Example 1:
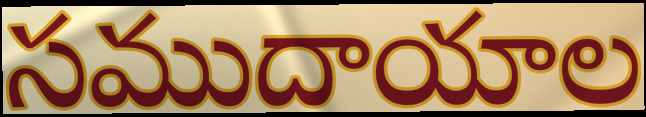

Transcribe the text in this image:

సముదాయాల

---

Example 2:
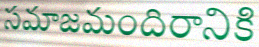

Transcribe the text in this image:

సమాజమందిరానికి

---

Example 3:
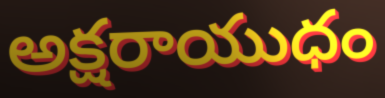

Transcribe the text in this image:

అక్షరాయుధం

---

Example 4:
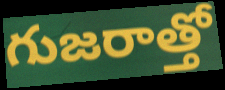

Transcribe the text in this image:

గుజరాత్తో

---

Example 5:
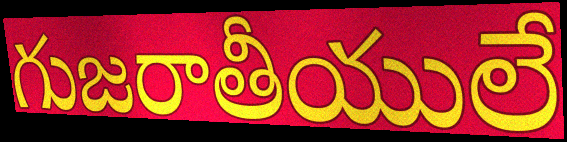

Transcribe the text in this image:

గుజరాతీయులే